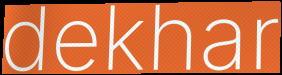
dekhar